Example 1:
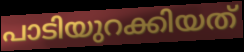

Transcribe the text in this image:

പാടിയുറക്കിയത്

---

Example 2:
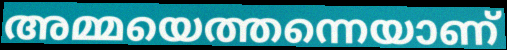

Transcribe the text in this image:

അമ്മയെത്തന്നെയാണ്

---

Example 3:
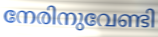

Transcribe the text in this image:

നേരിനുവേണ്ടി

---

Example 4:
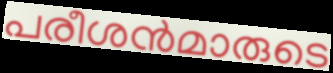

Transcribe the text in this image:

പരീശൻമാരുടെ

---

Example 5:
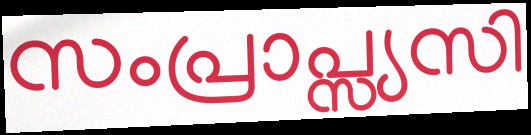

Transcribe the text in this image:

സംപ്രാപ്സ്യസി